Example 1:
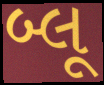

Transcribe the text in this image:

બ્લૂ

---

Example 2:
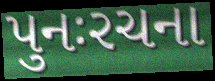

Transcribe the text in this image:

પુનઃરચના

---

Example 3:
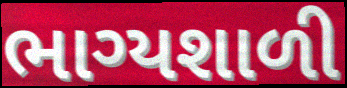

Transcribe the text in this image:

ભાગ્યશાળી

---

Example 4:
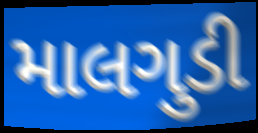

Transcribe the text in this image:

માલગુડી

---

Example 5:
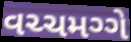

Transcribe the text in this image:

વચ્ચમગ્ગે